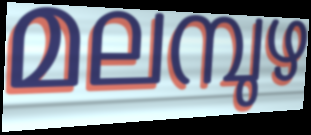
മലമ്പുഴ